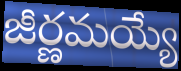
జీర్ణమయ్యే